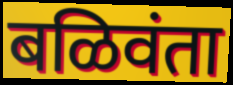
बळिवंता